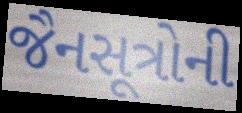
જૈનસૂત્રોની